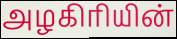
அழகிரியின்